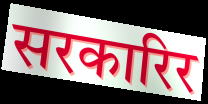
सरकारिर